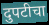
दुपटीचा